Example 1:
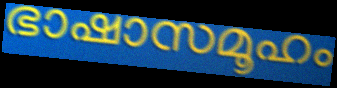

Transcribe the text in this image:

ഭാഷാസമൂഹം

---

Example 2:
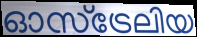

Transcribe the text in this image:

ഓസ്ട്രേലിയ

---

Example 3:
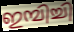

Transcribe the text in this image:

ഇമ്പിച്ചി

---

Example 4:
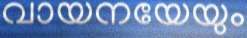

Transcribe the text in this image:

വായനയേയും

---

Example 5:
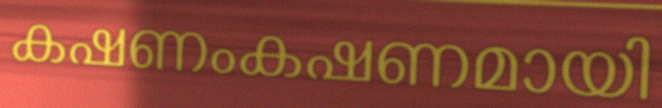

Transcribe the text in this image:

കഷണംകഷണമായി